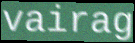
vairag